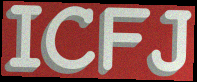
ICFJ